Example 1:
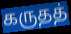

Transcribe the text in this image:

கருதத்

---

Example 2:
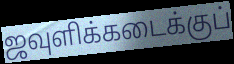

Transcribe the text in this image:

ஜவுளிக்கடைக்குப்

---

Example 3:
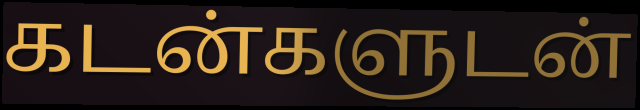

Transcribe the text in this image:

கடன்களுடன்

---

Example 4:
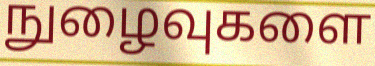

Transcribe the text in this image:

நுழைவுகளை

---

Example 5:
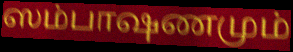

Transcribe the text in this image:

ஸம்பாஷணமும்